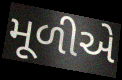
મૂળીએ